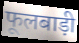
फूलबाड़ी